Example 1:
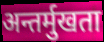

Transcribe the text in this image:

अन्तर्मुखता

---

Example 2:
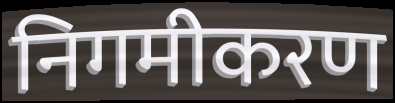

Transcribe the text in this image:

निगमीकरण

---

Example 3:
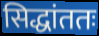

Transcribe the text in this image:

सिद्धांततः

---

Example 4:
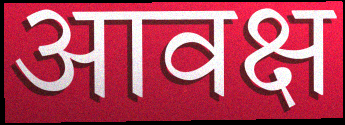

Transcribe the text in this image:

आवक्ष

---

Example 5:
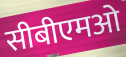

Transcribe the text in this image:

सीबीएमओ